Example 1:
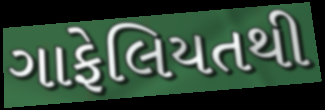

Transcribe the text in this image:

ગાફેલિયતથી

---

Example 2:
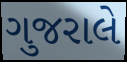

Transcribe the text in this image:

ગુજરાલે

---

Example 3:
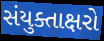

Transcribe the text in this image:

સંયુક્તાક્ષરો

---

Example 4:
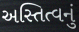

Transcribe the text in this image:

અસ્તિત્વનું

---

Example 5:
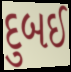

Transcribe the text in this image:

દુબઈ